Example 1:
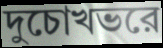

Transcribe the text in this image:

দুচোখভরে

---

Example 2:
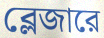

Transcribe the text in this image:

ব্লেজারে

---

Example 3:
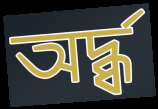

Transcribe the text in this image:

অর্দ্ধ্ব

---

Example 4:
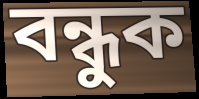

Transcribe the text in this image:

বন্ধুক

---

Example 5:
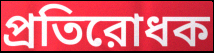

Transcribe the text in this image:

প্রতিরোধক